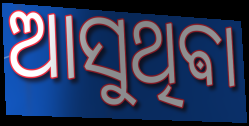
ଆସୁଥିଵା